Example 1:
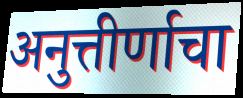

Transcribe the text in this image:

अनुत्तीर्णाचा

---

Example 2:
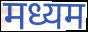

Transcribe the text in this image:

मध्यम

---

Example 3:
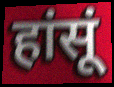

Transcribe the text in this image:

हांसूं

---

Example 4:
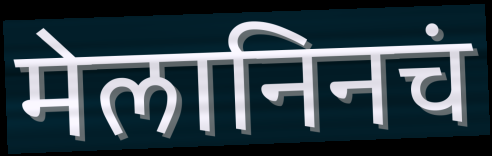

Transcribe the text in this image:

मेलानिनचं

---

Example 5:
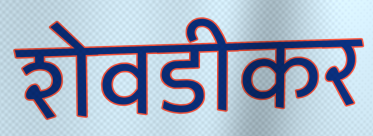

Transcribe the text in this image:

शेवडीकर